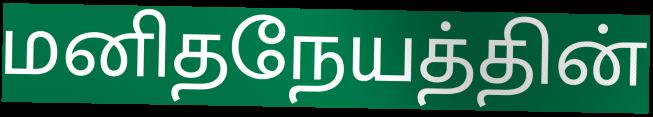
மனிதநேயத்தின்